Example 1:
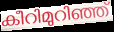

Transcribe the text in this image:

കീറിമുറിഞ്ഞ്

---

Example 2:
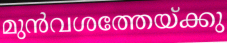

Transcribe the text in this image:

മുൻവശത്തേയ്ക്കു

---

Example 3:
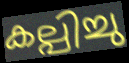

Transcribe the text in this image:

കല്പിച്ചു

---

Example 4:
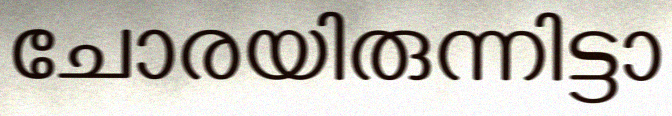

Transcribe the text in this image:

ചോരയിരുന്നിട്ടാ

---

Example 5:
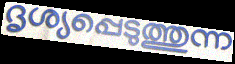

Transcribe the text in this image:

ദൃശ്യപ്പെടുത്തുന്ന